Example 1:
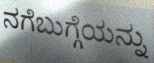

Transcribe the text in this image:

ನಗೆಬುಗ್ಗೆಯನ್ನು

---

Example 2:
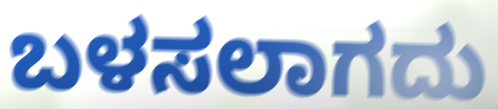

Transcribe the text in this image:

ಬಳಸಲಾಗದು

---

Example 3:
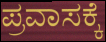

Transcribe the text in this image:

ಪ್ರವಾಸಕ್ಕೆ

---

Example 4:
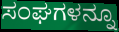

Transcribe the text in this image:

ಸಂಘಗಳನ್ನೂ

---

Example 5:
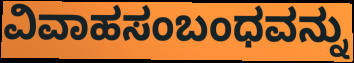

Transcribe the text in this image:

ವಿವಾಹಸಂಬಂಧವನ್ನು